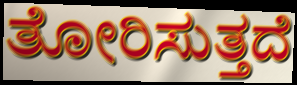
ತೋರಿಸುತ್ತದೆ